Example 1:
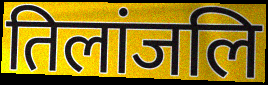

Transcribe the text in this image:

तिलांजलि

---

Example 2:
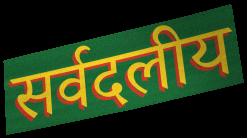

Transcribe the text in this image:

सर्वदलीय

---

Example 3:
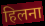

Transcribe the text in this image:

हिलना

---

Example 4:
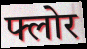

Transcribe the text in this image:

फ्लोर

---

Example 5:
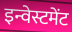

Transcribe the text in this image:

इन्वेस्टमेंट